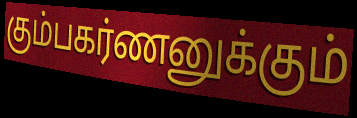
கும்பகர்ணனுக்கும்